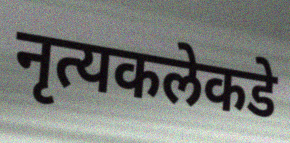
नृत्यकलेकडे